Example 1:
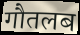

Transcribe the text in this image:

गौतलब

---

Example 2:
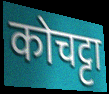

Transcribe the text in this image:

कोचट्टा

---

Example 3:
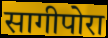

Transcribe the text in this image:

सागीपोरा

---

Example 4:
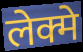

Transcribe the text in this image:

लेक्मे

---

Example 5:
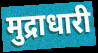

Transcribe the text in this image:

मुद्राधारी